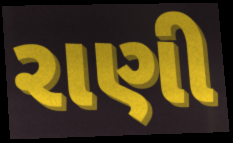
રાણી